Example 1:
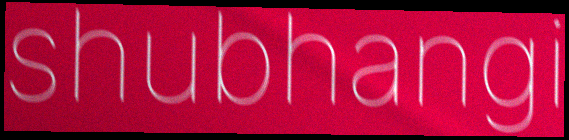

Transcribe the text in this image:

shubhangi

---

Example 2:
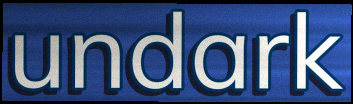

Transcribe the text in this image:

undark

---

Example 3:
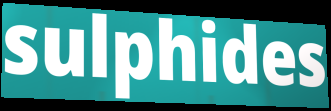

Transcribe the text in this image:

sulphides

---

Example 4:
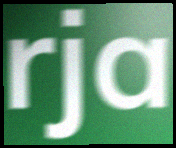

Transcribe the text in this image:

rja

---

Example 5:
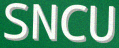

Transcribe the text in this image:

SNCU